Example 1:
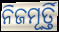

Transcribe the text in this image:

ନିଜମୂର୍ତ୍ତି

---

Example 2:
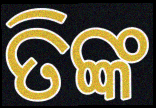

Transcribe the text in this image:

ତିଙ୍କ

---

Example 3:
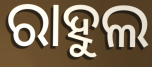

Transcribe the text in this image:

ରାହୁଲ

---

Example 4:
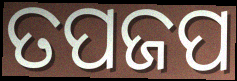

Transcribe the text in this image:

ତପଜପ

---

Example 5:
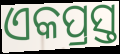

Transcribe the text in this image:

ଏକପ୍ରସ୍ତ